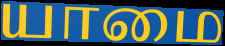
யாமை